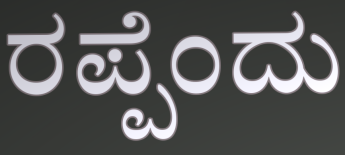
ರಪ್ಪೆಂದು